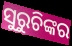
ସୁରୁଚିଙ୍କର